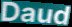
Daud